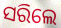
ସରିଲେ